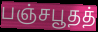
பஞ்சபூதத்